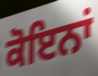
ਕੋਇਨਾਂ